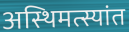
अस्थिमत्स्यांत